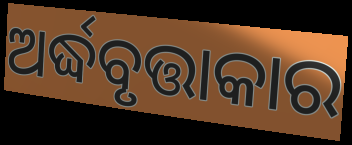
ଅର୍ଦ୍ଧବୃତ୍ତାକାର